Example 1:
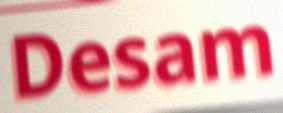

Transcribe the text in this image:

Desam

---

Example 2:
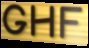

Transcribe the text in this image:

GHF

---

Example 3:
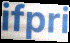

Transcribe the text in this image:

ifpri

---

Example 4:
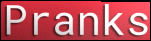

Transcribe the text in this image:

Pranks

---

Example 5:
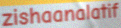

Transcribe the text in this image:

zishaanalatif